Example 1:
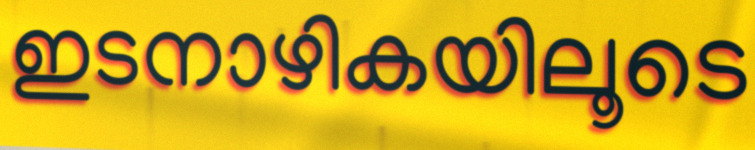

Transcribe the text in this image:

ഇടനാഴികയിലൂടെ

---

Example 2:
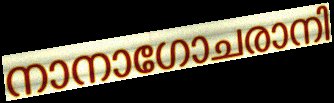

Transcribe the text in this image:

നാനാഗോചരാനി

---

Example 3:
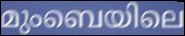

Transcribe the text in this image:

മുംബെയിലെ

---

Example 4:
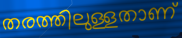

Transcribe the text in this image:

തരത്തിലുള്ളതാണ്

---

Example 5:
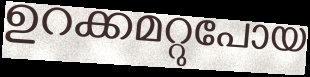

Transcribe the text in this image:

ഉറക്കമറ്റുപോയ